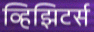
व्हिझिटर्स